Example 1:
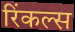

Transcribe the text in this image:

रिंकल्स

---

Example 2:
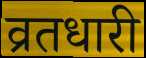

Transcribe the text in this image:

व्रतधारी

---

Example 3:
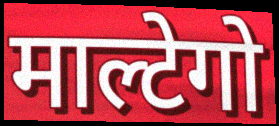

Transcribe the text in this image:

माल्टेगो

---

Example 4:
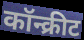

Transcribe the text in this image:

कॉन्क्रीट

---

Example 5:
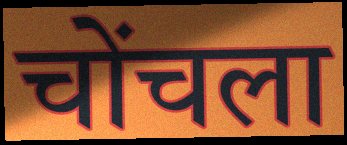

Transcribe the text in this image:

चोंचला